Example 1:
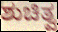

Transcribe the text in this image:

ಶುಚಿತ್ವ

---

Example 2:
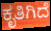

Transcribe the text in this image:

ಕೃತಿಗಿದೆ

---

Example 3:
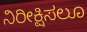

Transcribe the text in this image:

ನಿರೀಕ್ಷಿಸಲೂ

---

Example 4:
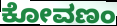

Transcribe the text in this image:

ಕೋವಣಂ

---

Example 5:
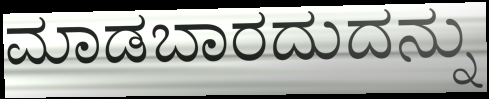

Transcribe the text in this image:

ಮಾಡಬಾರದುದನ್ನು